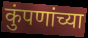
कुंपणांच्या